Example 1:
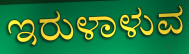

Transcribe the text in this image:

ಇರುಳಾಳುವ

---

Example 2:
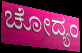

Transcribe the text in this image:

ಚೋದ್ಯಂ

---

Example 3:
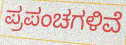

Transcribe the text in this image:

ಪ್ರಪಂಚಗಳಿವೆ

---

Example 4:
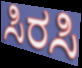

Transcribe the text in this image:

ಸಿರಸಿ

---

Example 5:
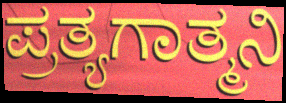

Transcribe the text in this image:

ಪ್ರತ್ಯಗಾತ್ಮನಿ